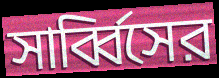
সার্ব্বিসের